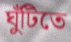
ঘুঁটিতে